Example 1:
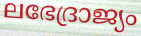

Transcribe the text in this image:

ലഭേദ്രാജ്യം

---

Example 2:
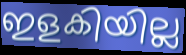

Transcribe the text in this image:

ഇളകിയില്ല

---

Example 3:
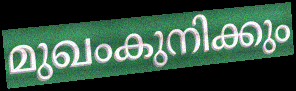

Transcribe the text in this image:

മുഖംകുനിക്കും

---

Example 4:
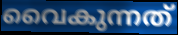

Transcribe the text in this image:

വൈകുന്നത്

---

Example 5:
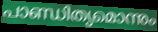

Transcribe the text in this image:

പാണ്ഡിത്യമൊന്നും